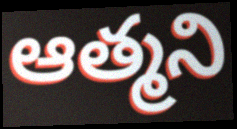
ఆత్మని